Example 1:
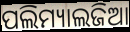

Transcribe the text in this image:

ପଲିମ୍ୟାଲଜିଆ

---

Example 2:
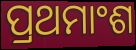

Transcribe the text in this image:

ପ୍ରଥମାଂଶ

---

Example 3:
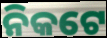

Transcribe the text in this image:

ନିକଟେ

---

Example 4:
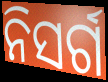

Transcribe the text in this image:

ନିସର୍ଗ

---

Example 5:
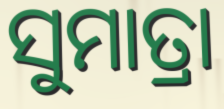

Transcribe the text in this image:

ସୁମାତ୍ରା